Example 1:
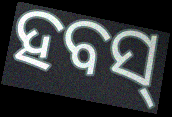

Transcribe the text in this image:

ହବସ୍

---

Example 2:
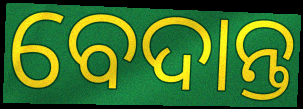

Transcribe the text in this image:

ବେଦାନ୍ତ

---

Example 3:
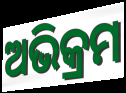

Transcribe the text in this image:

ଅଭିକ୍ରମ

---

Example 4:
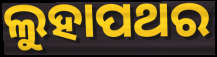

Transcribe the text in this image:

ଲୁହାପଥର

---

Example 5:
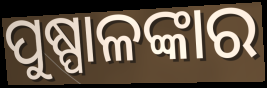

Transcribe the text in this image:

ପୁଷ୍ପାଳଙ୍କାର